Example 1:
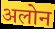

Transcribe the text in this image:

अलोन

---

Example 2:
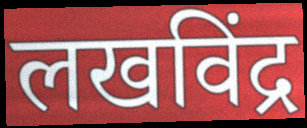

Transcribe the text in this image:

लखविंद्र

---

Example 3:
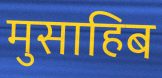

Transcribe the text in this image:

मुसाहिब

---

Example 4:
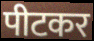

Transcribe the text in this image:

पीटकर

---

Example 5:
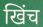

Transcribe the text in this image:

खिंच